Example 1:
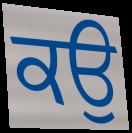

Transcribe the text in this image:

ਕਉ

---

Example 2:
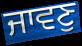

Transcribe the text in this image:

ਜਾਵਣੁ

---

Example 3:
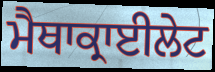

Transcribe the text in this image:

ਮੈਥਾਕ੍ਰਾਈਲੇਟ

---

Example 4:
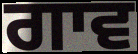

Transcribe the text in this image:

ਗਾਵ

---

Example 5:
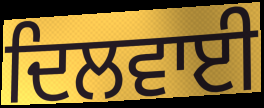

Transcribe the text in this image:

ਦਿਲਵਾਈ